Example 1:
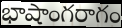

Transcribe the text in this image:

భాషాంగరాగం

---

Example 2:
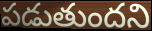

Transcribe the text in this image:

పడుతుందని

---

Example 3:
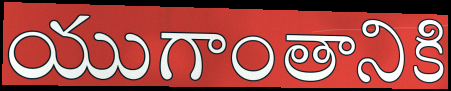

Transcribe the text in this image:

యుగాంతానికి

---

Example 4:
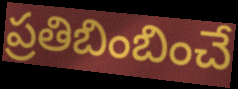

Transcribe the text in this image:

ప్రతిబింబించే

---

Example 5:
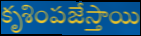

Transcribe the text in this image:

కృశింపజేస్తాయి